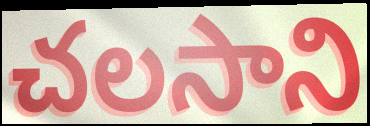
చలసాని